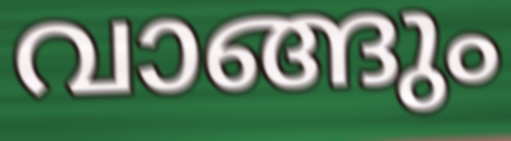
വാങ്ങും